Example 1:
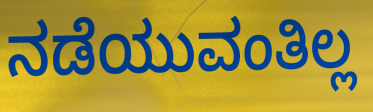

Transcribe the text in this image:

ನಡೆಯುವಂತಿಲ್ಲ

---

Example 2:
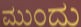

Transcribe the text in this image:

ಮುಂದು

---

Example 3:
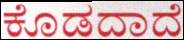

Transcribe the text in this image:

ಕೊಡದಾದೆ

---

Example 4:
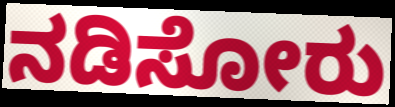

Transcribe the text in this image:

ನಡಿಸೋರು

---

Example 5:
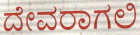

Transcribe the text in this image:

ದೇವರಾಗಲಿ